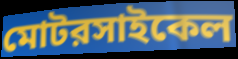
মোটরসাইকেল